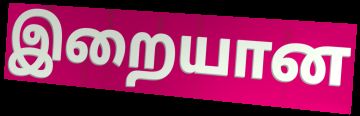
இறையான